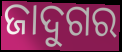
ଜାଦୁଗର